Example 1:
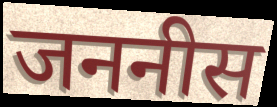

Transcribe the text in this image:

जननीस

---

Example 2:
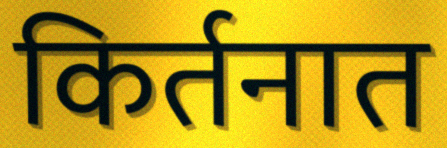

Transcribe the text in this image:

किर्तनात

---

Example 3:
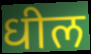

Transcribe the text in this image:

धील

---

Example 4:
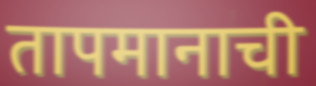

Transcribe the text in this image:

तापमानाची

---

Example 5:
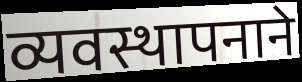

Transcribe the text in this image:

व्यवस्थापनाने